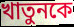
খাতুনকে